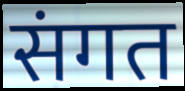
संगत